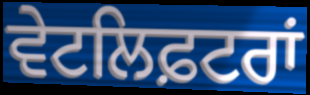
ਵੇਟਲਿਫ਼ਟਰਾਂ